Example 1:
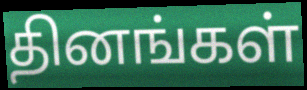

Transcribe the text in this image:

தினங்கள்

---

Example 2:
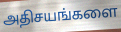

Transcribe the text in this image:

அதிசயங்களை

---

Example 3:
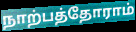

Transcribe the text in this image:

நாற்பத்தோராம்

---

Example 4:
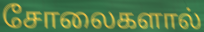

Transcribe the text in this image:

சோலைகளால்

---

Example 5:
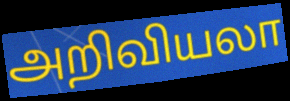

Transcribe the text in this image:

அறிவியலா